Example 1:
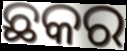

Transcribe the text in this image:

ଛକର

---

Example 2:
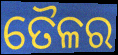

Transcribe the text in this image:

ତୈଳର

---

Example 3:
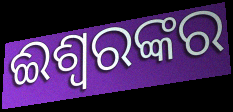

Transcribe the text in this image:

ଈଶ୍ୱରଙ୍କର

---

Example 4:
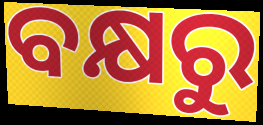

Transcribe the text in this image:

ବକ୍ଷରୁ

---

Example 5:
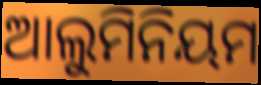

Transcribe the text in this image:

ଆଲୁମିନିୟମ